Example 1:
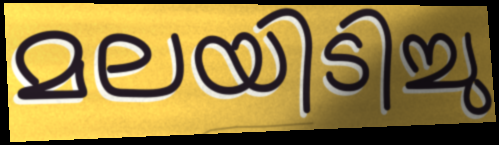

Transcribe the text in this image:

മലയിടിച്ചു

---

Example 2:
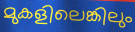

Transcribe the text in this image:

മുകളിലെങ്കിലും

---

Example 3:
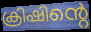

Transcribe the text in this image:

ക്രിഷിന്റെ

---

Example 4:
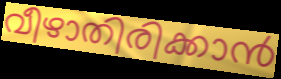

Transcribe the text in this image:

വീഴാതിരിക്കാൻ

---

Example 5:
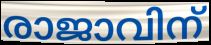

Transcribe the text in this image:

രാജാവിന്